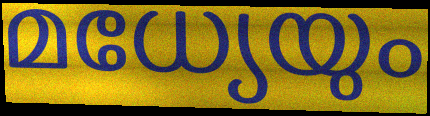
മധ്യേയും